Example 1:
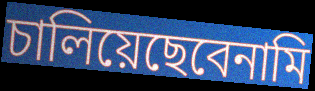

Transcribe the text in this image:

চালিয়েছেবেনামি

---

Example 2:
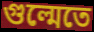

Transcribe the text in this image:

গুল্মেতে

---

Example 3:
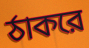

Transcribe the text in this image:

ঠাকরে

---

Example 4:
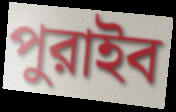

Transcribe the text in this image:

পুরাইব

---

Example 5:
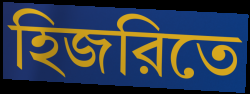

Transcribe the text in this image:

হিজরিতে